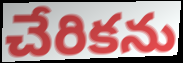
చేరికను